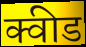
क्वीड